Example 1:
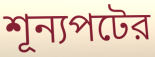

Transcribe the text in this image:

শূন্যপটের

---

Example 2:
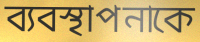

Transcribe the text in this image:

ব্যবস্থাপনাকে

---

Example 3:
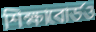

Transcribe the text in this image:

শিক্ষাবোর্ডও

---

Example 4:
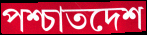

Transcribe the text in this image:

পশ্চাতদেশ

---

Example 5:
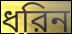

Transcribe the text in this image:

ধরিন